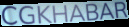
CGKHABAR